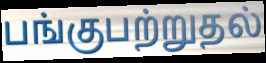
பங்குபற்றுதல்